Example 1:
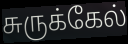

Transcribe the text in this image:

சுருக்கேல்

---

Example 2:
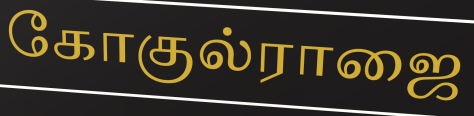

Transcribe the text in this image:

கோகுல்ராஜை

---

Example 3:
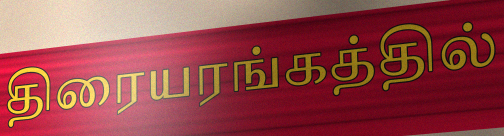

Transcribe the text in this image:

திரையரங்கத்தில்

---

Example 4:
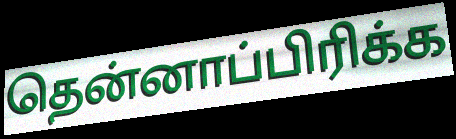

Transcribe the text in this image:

தென்னாப்பிரிக்க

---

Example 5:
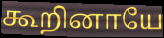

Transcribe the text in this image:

கூறினாயே